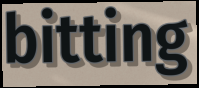
bitting